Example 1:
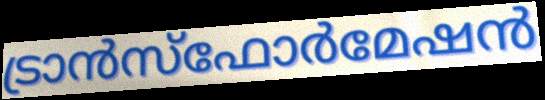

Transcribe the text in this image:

ട്രാൻസ്ഫോർമേഷൻ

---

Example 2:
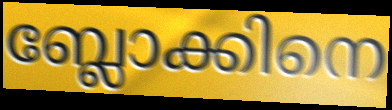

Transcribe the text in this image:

ബ്ലോക്കിനെ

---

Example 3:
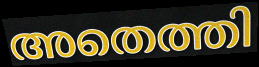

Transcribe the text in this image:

അതെത്തി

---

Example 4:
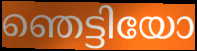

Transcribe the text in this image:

ഞെട്ടിയോ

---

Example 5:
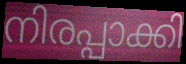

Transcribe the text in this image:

നിരപ്പാക്കി